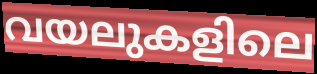
വയലുകളിലെ